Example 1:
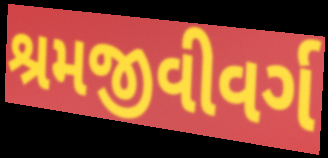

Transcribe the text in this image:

શ્રમજીવીવર્ગ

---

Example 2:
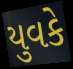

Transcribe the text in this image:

યુવકે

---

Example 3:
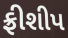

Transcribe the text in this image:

ફ્રીશીપ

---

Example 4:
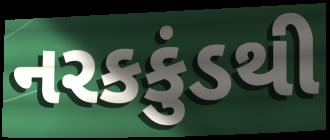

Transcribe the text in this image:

નરકકુંડથી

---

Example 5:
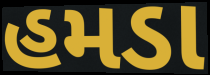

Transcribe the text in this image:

હમડા